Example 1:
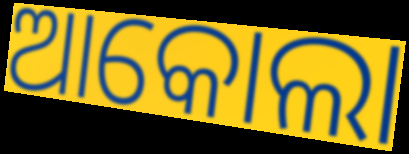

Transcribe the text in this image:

ଆକୋଲା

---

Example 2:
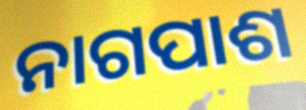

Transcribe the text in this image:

ନାଗପାଶ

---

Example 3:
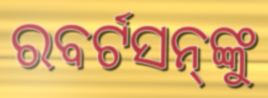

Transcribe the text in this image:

ରବର୍ଟସନ୍‌ଙ୍କୁ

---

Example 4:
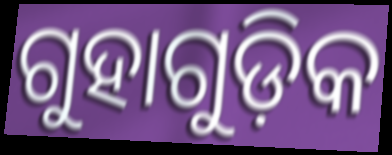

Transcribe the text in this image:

ଗୁହାଗୁଡ଼ିକ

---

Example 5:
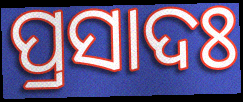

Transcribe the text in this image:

ପ୍ରସାଦଃ